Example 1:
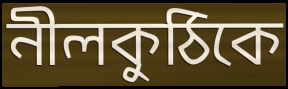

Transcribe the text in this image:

নীলকুঠিকে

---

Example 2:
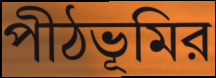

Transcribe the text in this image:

পীঠভূমির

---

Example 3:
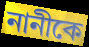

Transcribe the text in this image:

নানীকে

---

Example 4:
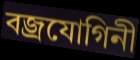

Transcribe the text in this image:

বজ্রযোগিনী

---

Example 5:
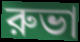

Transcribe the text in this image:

রুভা